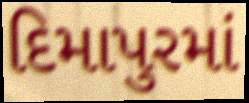
દિમાપુરમાં